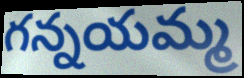
గన్నయమ్మ